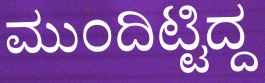
ಮುಂದಿಟ್ಟಿದ್ದ